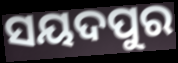
ସୟଦପୁର